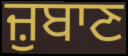
ਜ਼ੁਬਾਣ